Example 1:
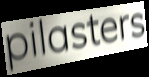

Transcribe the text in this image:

pilasters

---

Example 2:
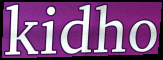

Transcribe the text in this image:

kidho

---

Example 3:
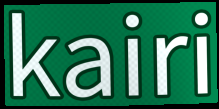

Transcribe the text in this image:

kairi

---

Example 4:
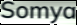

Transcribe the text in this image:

Somya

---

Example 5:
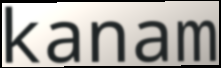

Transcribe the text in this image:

kanam